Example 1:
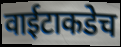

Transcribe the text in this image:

वाईटाकडेच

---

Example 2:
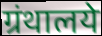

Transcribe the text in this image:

ग्रंथालये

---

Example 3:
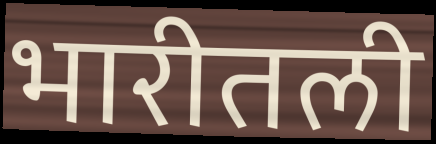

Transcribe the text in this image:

भारीतली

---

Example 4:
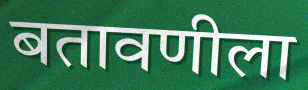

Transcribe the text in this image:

बतावणीला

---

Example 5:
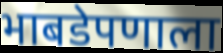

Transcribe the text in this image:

भाबडेपणाला